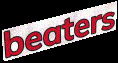
beaters